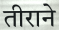
तीराने